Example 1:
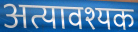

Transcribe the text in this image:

अत्यावश्यक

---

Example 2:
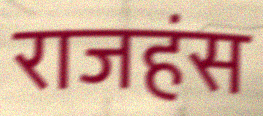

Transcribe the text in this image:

राजहंस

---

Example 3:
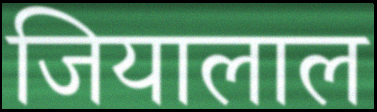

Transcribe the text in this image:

जियालाल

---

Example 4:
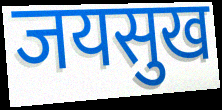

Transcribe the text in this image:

जयसुख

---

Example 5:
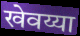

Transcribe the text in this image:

खेवय्या